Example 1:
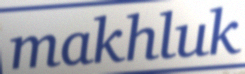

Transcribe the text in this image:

makhluk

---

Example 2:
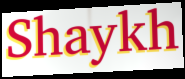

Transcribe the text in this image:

Shaykh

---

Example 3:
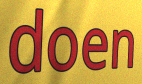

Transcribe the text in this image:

doen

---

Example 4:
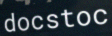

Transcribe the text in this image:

docstoc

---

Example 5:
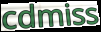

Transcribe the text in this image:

cdmiss